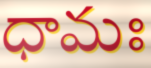
ధామః